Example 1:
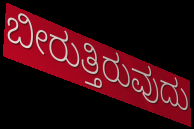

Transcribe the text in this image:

ಬೀರುತ್ತಿರುವುದು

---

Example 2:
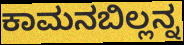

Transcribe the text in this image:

ಕಾಮನಬಿಲ್ಲನ್ನ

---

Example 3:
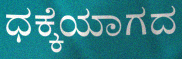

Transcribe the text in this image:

ಧಕ್ಕೆಯಾಗದ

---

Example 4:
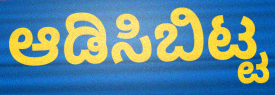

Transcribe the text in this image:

ಆಡಿಸಿಬಿಟ್ಟ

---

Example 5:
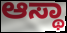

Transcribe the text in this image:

ಆಸ್ಥಾ